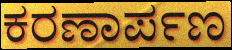
ಕರಣಾರ್ಪಣ